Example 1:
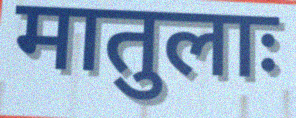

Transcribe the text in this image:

मातुलाः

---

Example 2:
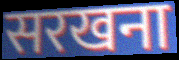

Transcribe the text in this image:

सरखना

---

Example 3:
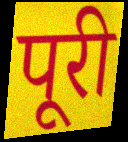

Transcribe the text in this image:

पूरी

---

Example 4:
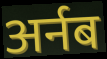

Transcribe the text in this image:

अर्नब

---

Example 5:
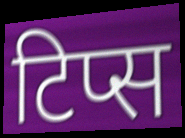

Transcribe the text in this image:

टिप्स